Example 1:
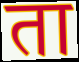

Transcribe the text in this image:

ता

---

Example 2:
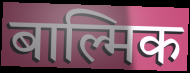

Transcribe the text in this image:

बाल्मिक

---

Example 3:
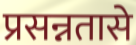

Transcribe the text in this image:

प्रसन्नतासे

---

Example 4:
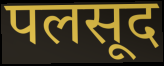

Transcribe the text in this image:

पलसूद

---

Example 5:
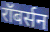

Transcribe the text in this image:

रॉबर्सन